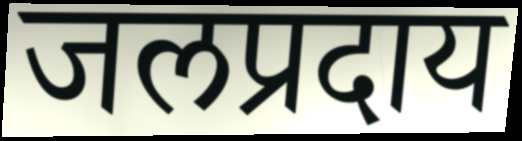
जलप्रदाय